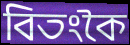
বিতংকৈ